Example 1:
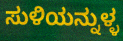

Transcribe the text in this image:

ಸುಳಿಯನ್ನುಳ್ಳ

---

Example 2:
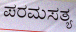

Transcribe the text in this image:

ಪರಮಸತ್ಯ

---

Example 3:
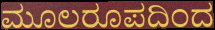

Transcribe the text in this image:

ಮೂಲರೂಪದಿಂದ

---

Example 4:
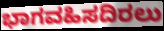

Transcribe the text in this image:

ಭಾಗವಹಿಸದಿರಲು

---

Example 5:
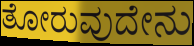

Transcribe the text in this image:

ತೋರುವುದೇನು